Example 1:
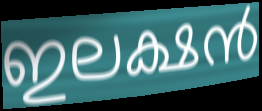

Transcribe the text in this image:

ഇലക്ഷൻ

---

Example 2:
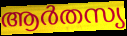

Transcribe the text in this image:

ആർതസ്യ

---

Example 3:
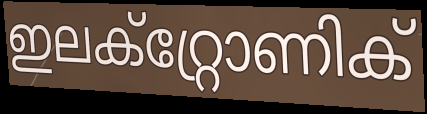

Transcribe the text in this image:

ഇലക്റ്റ്രോണിക്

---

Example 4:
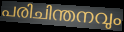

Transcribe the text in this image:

പരിചിന്തനവും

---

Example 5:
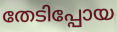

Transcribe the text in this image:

തേടിപ്പോയ